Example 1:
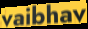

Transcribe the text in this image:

vaibhav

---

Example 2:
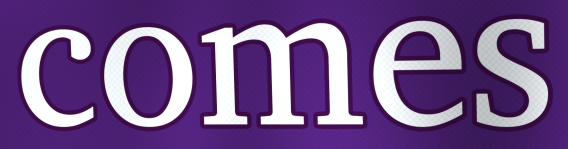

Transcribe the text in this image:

comes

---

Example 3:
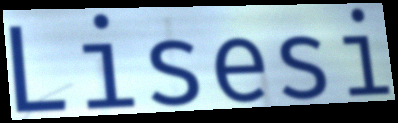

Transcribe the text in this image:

Lisesi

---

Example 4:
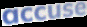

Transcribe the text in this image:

accuse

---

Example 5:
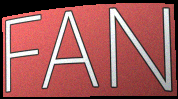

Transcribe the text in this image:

FAN